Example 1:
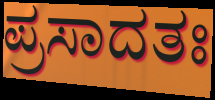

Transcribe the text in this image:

ಪ್ರಸಾದತಃ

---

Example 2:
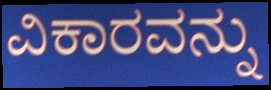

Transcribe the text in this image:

ವಿಕಾರವನ್ನು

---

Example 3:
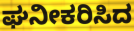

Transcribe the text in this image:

ಘನೀಕರಿಸಿದ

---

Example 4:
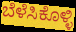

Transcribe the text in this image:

ಬೆಳೆಸಿಕೊಳ್ಳಿ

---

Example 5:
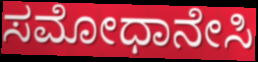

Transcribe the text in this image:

ಸಮೋಧಾನೇಸಿ